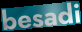
besadi